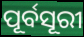
ପୂର୍ବସୂରୀ